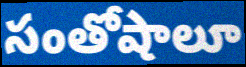
సంతోషాలూ